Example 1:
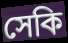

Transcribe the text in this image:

সেকি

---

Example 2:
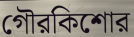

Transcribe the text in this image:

গৌরকিশোর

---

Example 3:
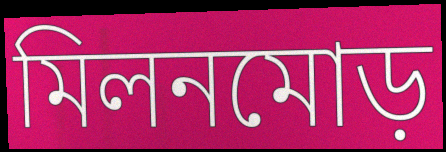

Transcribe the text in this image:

মিলনমোড়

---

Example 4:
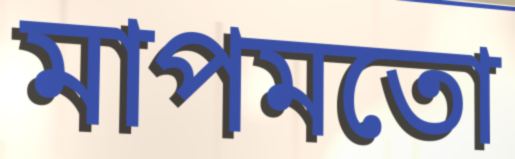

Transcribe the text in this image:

মাপমতো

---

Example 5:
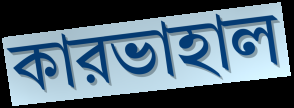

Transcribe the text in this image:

কারভাহাল